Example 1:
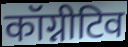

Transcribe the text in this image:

कॉग्नीटिव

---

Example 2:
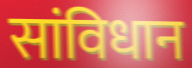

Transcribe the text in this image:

सांविधान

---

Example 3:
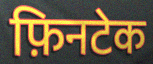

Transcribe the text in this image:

फ़िनटेक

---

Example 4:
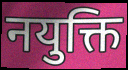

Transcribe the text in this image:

नयुक्ति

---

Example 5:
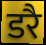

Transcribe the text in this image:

डरै